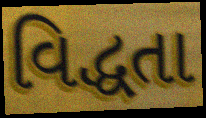
વિદ્ધતા